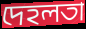
দেহলতা